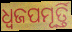
ଧ୍ୱଜପମୂର୍ତ୍ତି